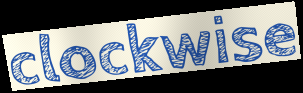
clockwise